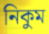
নিকুম